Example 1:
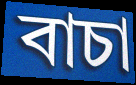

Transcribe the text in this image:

বাচা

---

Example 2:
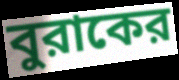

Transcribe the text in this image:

বুরাকের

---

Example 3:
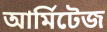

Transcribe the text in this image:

আর্মিটেজ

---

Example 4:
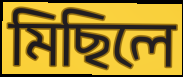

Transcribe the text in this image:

মিছিলে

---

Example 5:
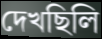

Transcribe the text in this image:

দেখছিলি